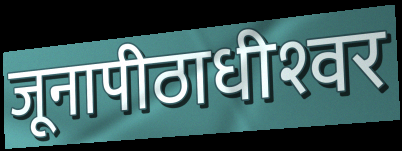
जूनापीठाधीश्वर